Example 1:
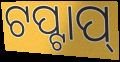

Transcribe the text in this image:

ଟପ୍ଟାପ୍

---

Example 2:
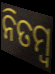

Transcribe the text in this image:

ନିତମ୍ବ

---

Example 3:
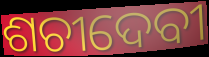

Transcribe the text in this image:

ଶଚୀଦେବୀ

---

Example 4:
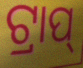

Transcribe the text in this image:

ଟ୍ରାପ୍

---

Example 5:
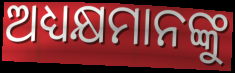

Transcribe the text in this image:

ଅଧ୍ୟକ୍ଷମାନଙ୍କୁ